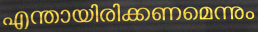
എന്തായിരിക്കണമെന്നും